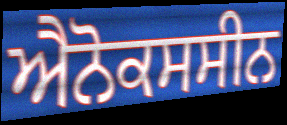
ਐਨੋਕਸਸੀਨ